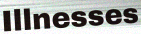
Illnesses